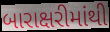
બારાક્ષરીમાંથી